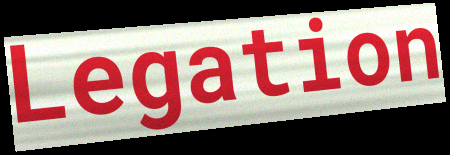
Legation